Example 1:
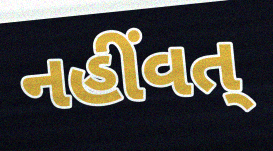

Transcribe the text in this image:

નહીંવત્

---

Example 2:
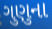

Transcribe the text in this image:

ગુણુના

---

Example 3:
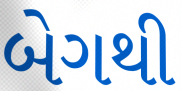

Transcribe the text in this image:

બેગથી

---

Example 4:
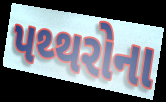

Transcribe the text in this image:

પથ્થરોના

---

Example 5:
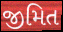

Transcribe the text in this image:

જીમિત